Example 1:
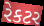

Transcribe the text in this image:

રેકટર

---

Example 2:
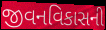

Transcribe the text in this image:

જીવનવિકાસની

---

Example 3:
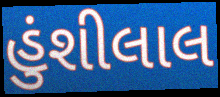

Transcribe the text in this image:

હુંશીલાલ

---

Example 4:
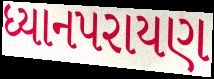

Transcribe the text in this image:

ધ્યાનપરાયણ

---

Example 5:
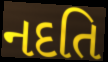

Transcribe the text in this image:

નદતિ